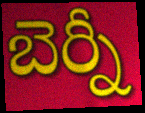
బెర్నీ